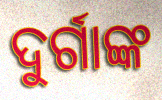
ଦୁର୍ଗାଙ୍କ